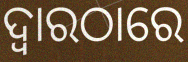
ଦ୍ୱାରଠାରେ